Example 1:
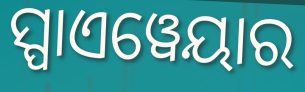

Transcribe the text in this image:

ସ୍ପାଏୱେୟାର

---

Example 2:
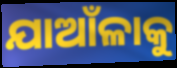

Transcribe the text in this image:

ଯାଆଁଳାକୁ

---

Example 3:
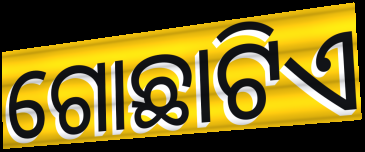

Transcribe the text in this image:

ଗୋଛାଟିଏ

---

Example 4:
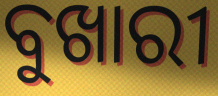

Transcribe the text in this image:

ବୁଖାରୀ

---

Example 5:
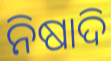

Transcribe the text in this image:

ନିଷାଦି